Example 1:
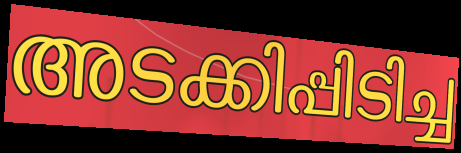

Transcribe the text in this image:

അടക്കിപ്പിടിച്ച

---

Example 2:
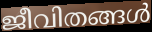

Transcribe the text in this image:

ജീവിതങ്ങൾ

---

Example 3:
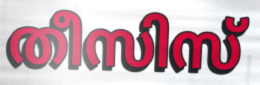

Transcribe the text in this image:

തീസിസ്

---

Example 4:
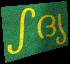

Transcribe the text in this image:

ഽദ്യ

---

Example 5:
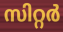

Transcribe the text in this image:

സിറ്റർ